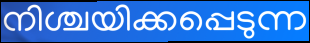
നിശ്ചയിക്കപ്പെടുന്ന